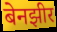
बेनझीर